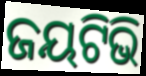
ଜୟଟିଭି